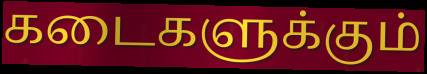
கடைகளுக்கும்